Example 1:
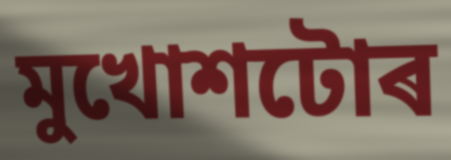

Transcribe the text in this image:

মুখোশটোৰ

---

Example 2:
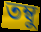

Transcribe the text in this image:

তম্বু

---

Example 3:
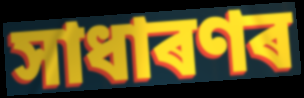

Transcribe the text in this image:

সাধাৰণৰ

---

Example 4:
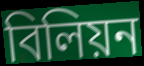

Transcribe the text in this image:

বিলিয়ন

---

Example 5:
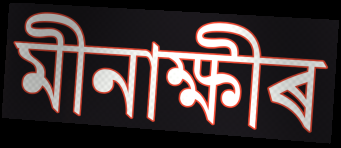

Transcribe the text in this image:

মীনাক্ষীৰ